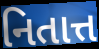
નિતાત્ત